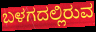
ಬಳಗದಲ್ಲಿರುವ